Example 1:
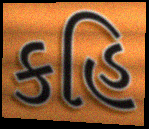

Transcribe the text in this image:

કહિ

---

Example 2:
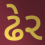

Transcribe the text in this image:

ઢેર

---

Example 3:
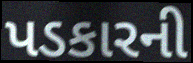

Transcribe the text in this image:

પડકારની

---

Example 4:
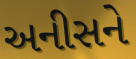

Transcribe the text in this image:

અનીસને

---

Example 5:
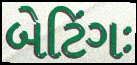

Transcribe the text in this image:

બેટિંગઃ